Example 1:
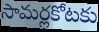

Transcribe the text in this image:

సామర్లకోటకు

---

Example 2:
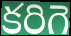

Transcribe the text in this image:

కరిగె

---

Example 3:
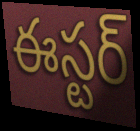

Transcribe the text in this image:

ఈస్టర్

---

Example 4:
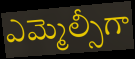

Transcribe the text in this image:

ఎమ్మెల్సీగా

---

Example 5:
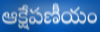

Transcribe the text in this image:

ఆక్షేపణీయం